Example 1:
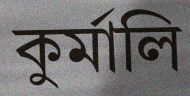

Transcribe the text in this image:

কুৰ্মালি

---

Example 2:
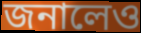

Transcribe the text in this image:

জনালেও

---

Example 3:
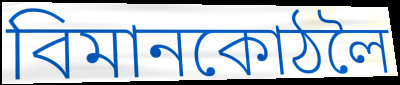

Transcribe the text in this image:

বিমানকোঠলৈ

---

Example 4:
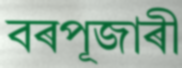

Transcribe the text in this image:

বৰপূজাৰী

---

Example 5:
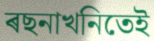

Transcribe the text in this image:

ৰছনাখনিতেই